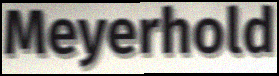
Meyerhold